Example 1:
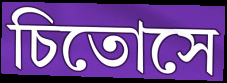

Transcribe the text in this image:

চিতোসে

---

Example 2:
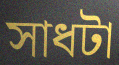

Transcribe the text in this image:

সাধটা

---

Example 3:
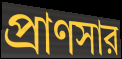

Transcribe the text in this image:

প্রাণসার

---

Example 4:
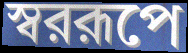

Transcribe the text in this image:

স্বররূপে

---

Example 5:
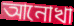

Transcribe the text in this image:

আনোখা